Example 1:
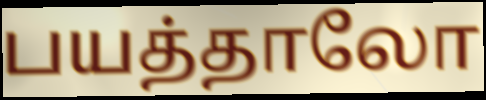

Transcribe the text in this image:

பயத்தாலோ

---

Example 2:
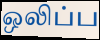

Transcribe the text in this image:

ஒலிப்ப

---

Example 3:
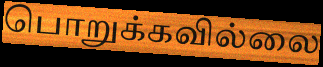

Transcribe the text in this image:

பொறுக்கவில்லை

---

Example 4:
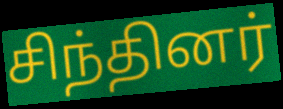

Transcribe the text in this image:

சிந்தினர்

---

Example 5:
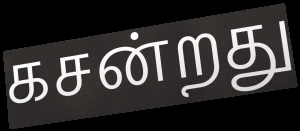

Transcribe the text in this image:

கசன்றது